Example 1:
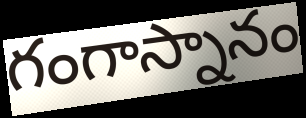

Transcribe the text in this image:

గంగాస్నానం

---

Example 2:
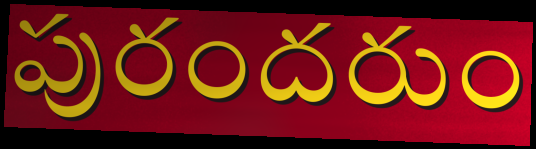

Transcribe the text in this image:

పురందరుం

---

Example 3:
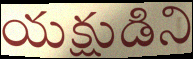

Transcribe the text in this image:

యక్షుడిని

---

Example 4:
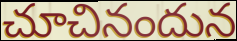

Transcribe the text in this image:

చూచినందున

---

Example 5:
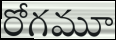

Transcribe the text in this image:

రోగమూ